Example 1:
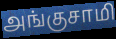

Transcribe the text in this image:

அங்குசாமி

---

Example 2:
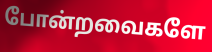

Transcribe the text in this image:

போன்றவைகளே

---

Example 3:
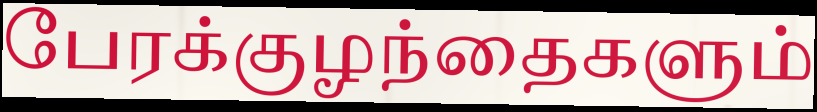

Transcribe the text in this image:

பேரக்குழந்தைகளும்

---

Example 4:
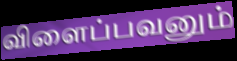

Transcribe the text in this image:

விளைப்பவனும்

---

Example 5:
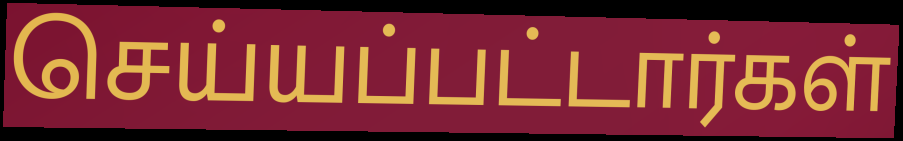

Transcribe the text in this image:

செய்யப்பட்டார்கள்